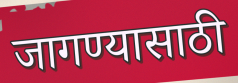
जागण्यासाठी